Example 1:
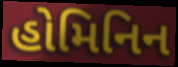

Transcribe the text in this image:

હોમિનિન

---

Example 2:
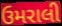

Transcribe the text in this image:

ઉમરાલી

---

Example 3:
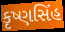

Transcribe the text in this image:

કૃષ્ણસિંહ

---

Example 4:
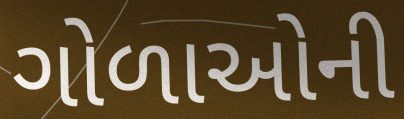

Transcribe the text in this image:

ગોળાઓની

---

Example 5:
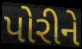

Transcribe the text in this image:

પોરીને